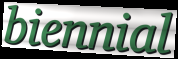
biennial